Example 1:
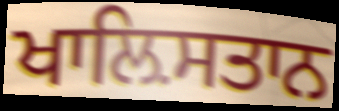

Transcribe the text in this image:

ਖਾਲ਼ਿਸਤਾਨ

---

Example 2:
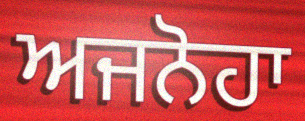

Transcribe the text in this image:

ਅਜਨੋਹਾ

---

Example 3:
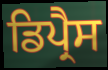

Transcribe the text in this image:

ਡਿਪ੍ਰੈਸ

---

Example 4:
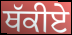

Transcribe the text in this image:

ਥੱਕੀਏ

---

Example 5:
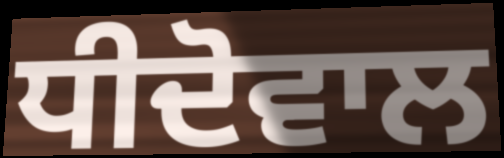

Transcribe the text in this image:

ਧੀਦੋਵਾਲ